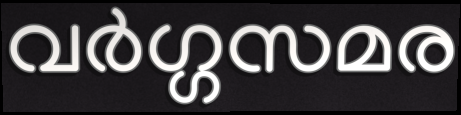
വർഗ്ഗസമര